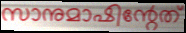
സാനുമാഷിന്റേത്